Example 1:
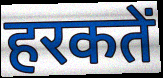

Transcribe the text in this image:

हरकतें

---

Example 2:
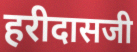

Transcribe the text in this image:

हरीदासजी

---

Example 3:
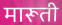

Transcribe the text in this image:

मारूती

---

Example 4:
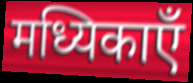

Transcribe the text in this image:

मध्यिकाएँ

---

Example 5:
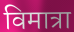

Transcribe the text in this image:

विमात्रा